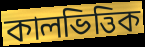
কালভিত্তিক